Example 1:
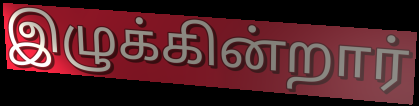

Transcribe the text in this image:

இழுக்கின்றார்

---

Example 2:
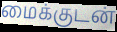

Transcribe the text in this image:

மைக்குடன்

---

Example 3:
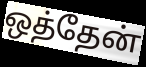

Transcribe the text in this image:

ஒத்தேன்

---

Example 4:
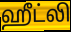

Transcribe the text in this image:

ஹீட்லி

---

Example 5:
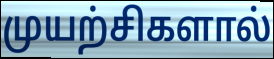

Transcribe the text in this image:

முயற்சிகளால்